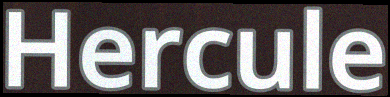
Hercule